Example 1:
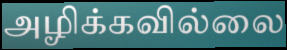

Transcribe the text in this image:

அழிக்கவில்லை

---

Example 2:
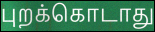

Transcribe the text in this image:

புறக்கொடாது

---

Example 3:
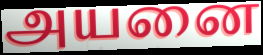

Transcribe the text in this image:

அயனை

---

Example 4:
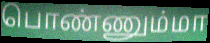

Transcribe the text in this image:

பொண்ணும்மா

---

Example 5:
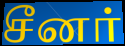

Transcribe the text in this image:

சீனர்